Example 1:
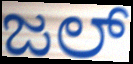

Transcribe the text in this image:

ಜಲ್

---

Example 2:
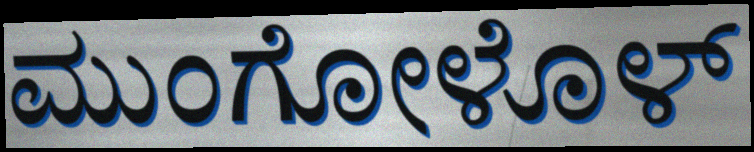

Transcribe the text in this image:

ಮುಂಗೋಳೊಳ್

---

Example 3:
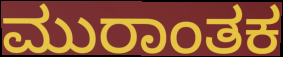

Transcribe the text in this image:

ಮುರಾಂತಕ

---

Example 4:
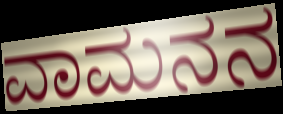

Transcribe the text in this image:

ವಾಮನನ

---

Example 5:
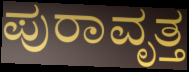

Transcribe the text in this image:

ಪುರಾವೃತ್ತ